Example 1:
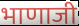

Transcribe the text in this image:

भाणाजी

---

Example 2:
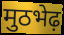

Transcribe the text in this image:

मुठभेढ़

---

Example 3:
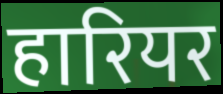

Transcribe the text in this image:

हारियर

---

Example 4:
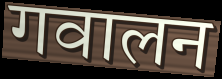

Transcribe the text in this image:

गवालन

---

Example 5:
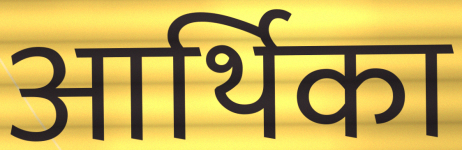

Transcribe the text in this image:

आर्थिका